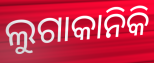
ଲୁଗାକାନିକି